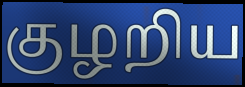
குழறிய